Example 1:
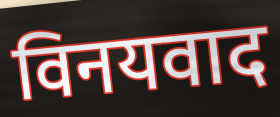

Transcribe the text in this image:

विनयवाद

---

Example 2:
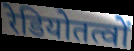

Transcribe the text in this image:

रेडियोतत्वों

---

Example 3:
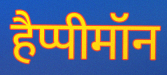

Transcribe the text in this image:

हैप्पीमॉन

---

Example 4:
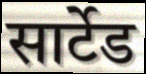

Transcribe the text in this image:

सार्टेड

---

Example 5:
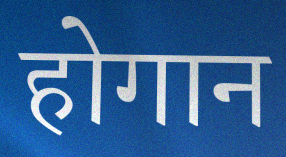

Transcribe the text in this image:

होगान